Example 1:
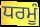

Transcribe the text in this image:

ਧਰਮੂੰ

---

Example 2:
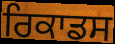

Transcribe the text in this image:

ਰਿਕਾਡਸ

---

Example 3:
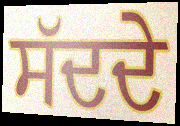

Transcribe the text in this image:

ਸੱਦਦੇ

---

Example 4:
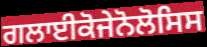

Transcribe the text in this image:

ਗਲਾਈਕੋਜੇਨੋਲੋਸਿਸ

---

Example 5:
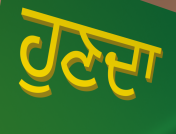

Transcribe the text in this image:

ਹੁਣਦਾ